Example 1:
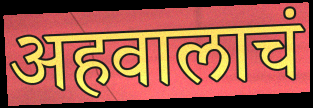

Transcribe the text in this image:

अहवालाचं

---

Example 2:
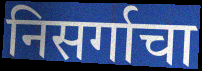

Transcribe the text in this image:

निसर्गाचा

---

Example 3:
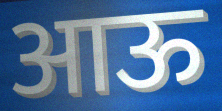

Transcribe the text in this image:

आऊ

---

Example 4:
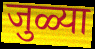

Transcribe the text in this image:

जुळ्या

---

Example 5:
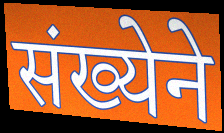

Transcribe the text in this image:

संख्येने